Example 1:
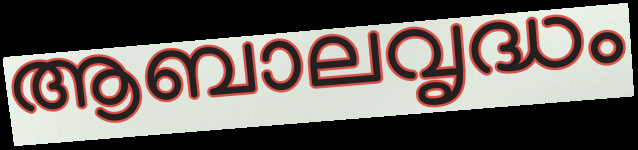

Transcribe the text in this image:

ആബാലവൃദ്ധം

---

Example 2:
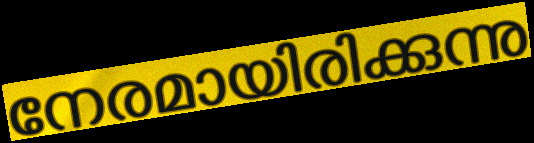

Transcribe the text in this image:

നേരമായിരിക്കുന്നു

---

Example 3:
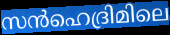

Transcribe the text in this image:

സൻഹെദ്രിമിലെ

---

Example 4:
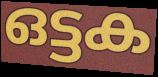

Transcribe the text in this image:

ഒട്ടക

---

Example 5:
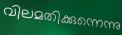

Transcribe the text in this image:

വിലമതിക്കുന്നെന്നു